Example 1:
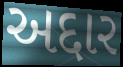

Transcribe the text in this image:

અદ્દાર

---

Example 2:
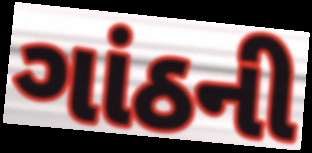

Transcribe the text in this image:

ગાંઠની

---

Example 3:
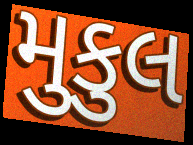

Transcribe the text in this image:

મુકુલ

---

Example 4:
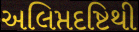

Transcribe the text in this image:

અલિપ્તદષ્ટિથી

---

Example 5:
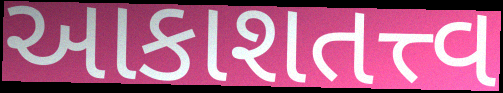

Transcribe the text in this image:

આકાશતત્ત્વ